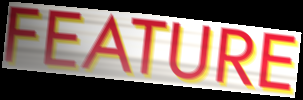
FEATURE